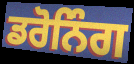
ਡਰੋਨਿੰਗ